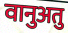
वानुअतु